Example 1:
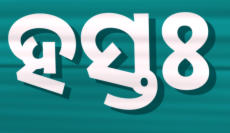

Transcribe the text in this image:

ହସ୍ତଃ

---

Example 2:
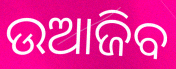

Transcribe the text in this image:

ଉଆଜିବ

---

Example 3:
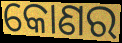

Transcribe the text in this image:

କୋଣର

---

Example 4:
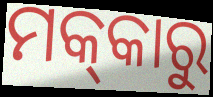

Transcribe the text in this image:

ମକ୍‌କାରୁ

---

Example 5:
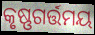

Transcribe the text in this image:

କୃଷ୍ଣଗର୍ତ୍ତମୟ